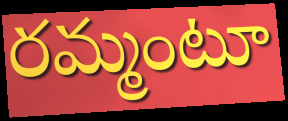
రమ్మంటూ